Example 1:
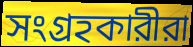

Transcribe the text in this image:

সংগ্রহকারীরা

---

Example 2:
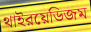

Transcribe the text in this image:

থাইরয়েডিজম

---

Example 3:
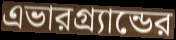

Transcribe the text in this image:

এভারগ্র্যান্ডের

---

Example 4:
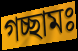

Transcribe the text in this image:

গচ্ছামঃ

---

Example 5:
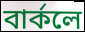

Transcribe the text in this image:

বার্কলে